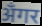
अँगर